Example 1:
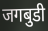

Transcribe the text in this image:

जगबुडी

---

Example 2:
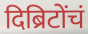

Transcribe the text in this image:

दिब्रिटोंचं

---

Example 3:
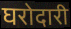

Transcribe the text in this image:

घरोदारी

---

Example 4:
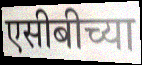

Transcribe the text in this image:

एसीबीच्या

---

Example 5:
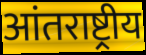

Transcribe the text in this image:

आंतराष्ट्रीय